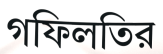
গফিলতির